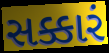
સક્કારં